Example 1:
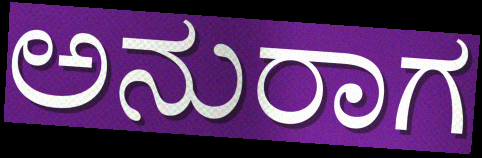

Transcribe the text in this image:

ಅನುರಾಗ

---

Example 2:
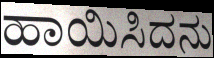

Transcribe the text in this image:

ಹಾಯಿಸಿದನು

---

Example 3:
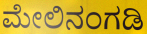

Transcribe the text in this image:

ಮೇಲಿನಂಗಡಿ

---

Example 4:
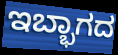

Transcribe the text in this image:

ಇಬ್ಭಾಗದ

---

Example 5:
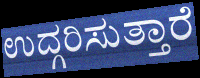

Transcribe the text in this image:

ಉದ್ಗರಿಸುತ್ತಾರೆ